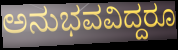
ಅನುಭವವಿದ್ದರೂ